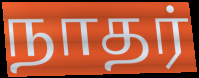
நாதர்